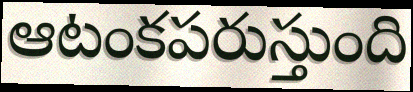
ఆటంకపరుస్తుంది